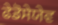
ਫੇਡੋਸੇਯੇਵ